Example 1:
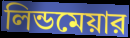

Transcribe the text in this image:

লিন্ডমেয়ার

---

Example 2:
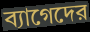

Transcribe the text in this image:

ব্যাগেদের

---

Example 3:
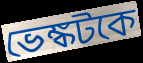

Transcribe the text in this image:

ভেঙ্কটকে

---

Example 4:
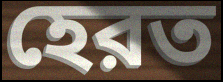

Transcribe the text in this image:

হেরত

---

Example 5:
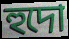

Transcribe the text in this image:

হুদো